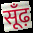
सूँढ़